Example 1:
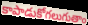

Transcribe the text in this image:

కాపాడుకోగలుగుతాం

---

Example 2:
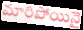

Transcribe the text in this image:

మారిపోయినై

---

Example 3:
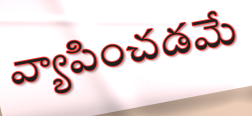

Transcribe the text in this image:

వ్యాపించడమే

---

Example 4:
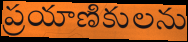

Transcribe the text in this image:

ప్రయాణికులను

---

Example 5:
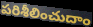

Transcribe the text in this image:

పరిశీలించుదాం